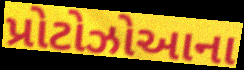
પ્રોટોઝોઆના